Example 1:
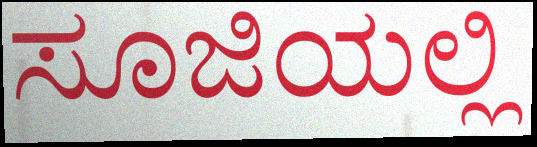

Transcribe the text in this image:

ಸೂಜಿಯಲ್ಲಿ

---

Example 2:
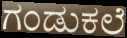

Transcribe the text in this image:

ಗಂಡುಕಲೆ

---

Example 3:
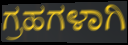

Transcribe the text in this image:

ಗ್ರಹಗಳಾಗಿ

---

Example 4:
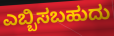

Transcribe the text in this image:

ಎಬ್ಬಿಸಬಹುದು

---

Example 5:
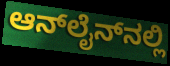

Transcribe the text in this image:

ಆನ್‌ಲೈನ್‌ನಲ್ಲಿ